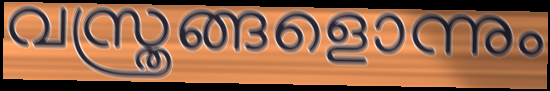
വസ്ത്രങ്ങളൊന്നും